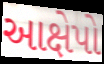
આક્ષેપો